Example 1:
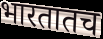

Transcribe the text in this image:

भारतातच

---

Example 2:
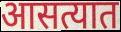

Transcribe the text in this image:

आसत्यात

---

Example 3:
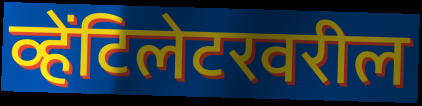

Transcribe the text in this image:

व्हेंटिलेटरवरील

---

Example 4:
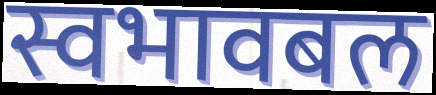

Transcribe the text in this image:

स्वभावबल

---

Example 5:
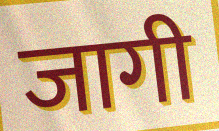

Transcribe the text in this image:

जागी